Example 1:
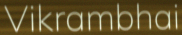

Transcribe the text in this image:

Vikrambhai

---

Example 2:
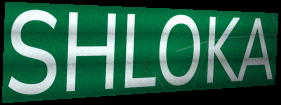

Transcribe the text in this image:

SHLOKA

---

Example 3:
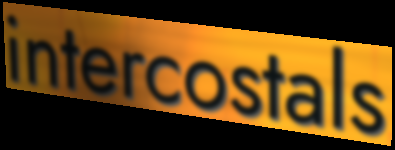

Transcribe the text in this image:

intercostals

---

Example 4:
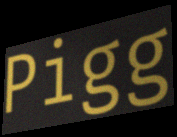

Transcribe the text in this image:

Pigg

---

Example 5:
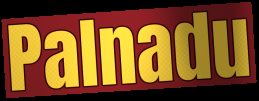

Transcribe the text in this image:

Palnadu